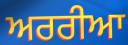
ਅਰਰੀਆ